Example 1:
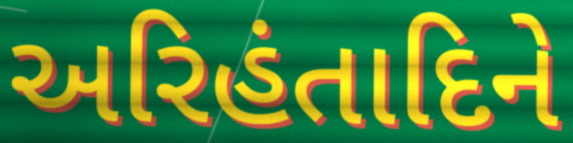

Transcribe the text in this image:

અરિહંતાદિને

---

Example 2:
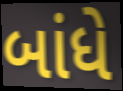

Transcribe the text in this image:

બાંધે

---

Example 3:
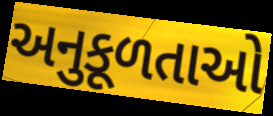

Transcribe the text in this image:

અનુકૂળતાઓ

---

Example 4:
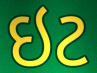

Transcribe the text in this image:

ઇટ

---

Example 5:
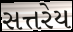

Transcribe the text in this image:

સત્તરેય